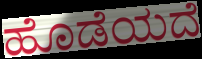
ಹೊಡೆಯದೆ